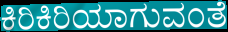
ಕಿರಿಕಿರಿಯಾಗುವಂತೆ